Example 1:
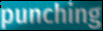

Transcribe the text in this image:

punching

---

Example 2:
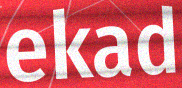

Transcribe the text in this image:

ekad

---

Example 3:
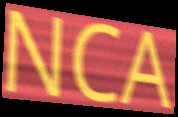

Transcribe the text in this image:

NCA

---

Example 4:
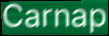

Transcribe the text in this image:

Carnap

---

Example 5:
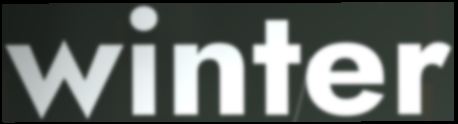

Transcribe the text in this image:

winter